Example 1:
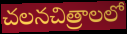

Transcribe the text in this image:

చలనచిత్రాలలో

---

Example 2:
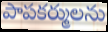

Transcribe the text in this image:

పాపకర్ములను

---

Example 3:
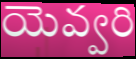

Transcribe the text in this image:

యెవ్వరి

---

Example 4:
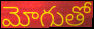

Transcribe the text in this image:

మోగుతో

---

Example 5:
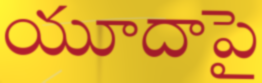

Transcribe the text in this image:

యూదాపై